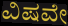
ವಿಷವೇ